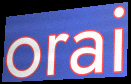
orai